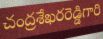
చంద్రశేఖరరెడ్డిగారి